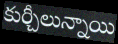
కుర్చీలున్నాయి